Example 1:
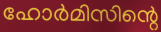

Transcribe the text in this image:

ഹോർമിസിന്റെ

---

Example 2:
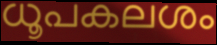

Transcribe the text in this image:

ധൂപകലശം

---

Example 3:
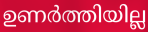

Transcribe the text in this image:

ഉണർത്തിയില്ല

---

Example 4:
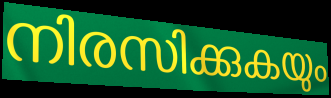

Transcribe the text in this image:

നിരസിക്കുകയും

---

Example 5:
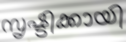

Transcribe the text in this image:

സൃഷ്ടിക്കായി